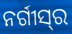
ନର୍ଗୀସ୍‍ର